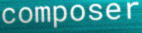
composer